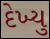
દેખ્યુ